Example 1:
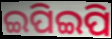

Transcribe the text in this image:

ଇପିଇପି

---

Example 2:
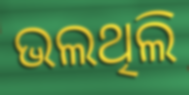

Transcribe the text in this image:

ଭଲଥିଲି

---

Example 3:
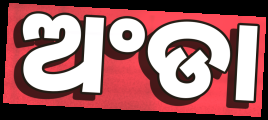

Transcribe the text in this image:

ଅଂଡା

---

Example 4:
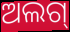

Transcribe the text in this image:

ଅଲଗ୍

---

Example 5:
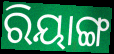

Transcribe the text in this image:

ରିୟାଙ୍ଗ